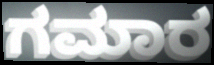
ಗಮಾರ